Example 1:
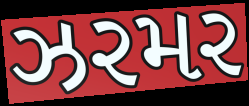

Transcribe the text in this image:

ઝરમર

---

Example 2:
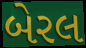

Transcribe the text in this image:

બેરલ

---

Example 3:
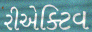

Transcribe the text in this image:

રીએક્ટિવ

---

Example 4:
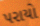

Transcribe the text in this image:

પરાયો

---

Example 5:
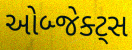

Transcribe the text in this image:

ઓબ્જેક્ટ્સ